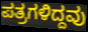
ಪತ್ರಗಳಿದ್ದವು